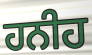
ਹਨੀਹ